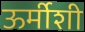
ऊर्मीशी